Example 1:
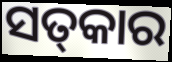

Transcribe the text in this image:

ସତ୍‌କାର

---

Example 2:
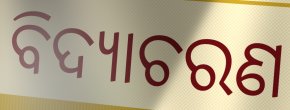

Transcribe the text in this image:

ବିଦ୍ୟାଚରଣ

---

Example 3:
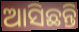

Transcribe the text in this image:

ଆସିଛନ୍ତି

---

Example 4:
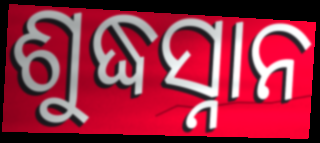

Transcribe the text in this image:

ଶୁଦ୍ଧସ୍ନାନ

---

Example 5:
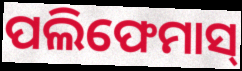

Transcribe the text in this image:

ପଲିଫେମାସ୍